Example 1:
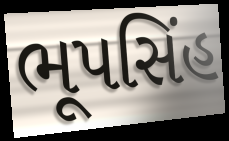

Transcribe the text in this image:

ભૂપસિંહ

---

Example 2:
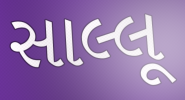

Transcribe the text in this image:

સાલ્લૂ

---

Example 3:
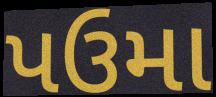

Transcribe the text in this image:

પઉમા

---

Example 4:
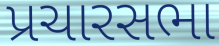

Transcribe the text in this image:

પ્રચારસભા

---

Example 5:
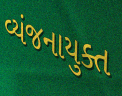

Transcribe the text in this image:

વ્યંજનાયુક્ત